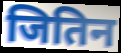
जितिन